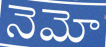
నెమో